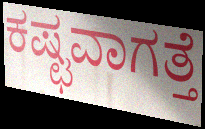
ಕಷ್ಟವಾಗತ್ತೆ